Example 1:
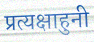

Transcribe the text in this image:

प्रत्यक्षाहुनी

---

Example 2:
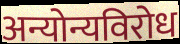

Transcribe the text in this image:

अन्योन्यविरोध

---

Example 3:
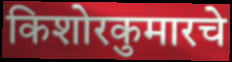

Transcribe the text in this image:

किशोरकुमारचे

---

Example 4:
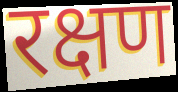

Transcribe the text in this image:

रक्षण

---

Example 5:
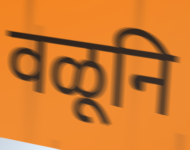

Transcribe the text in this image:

वळूनि